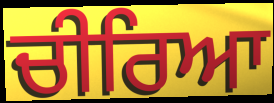
ਚੀਰਿਆ